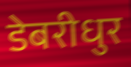
डेबरीधुर